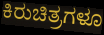
ಕಿರುಚಿತ್ರಗಳೂ